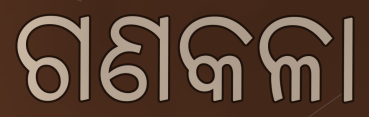
ଗଣକଳା